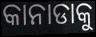
କାନାଡାକୁ